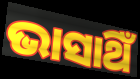
ଭାସାଥିଁ